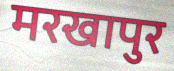
मरखापुर